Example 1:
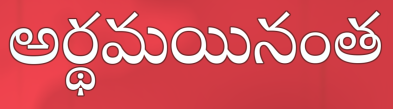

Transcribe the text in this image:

అర్థమయినంత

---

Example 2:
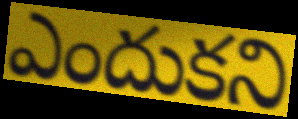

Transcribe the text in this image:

ఎందుకని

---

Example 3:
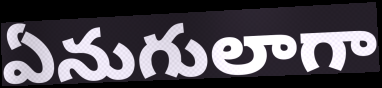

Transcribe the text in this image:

ఏనుగులాగా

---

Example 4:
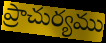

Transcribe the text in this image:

ప్రాచుర్యము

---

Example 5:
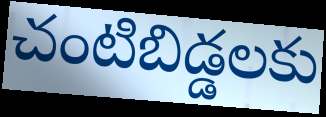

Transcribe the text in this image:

చంటిబిడ్డలకు